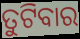
ତୁଟିବାର